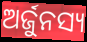
ଅର୍ଜୁନସ୍ୟ